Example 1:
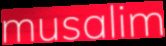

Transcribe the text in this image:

musalim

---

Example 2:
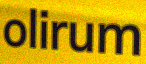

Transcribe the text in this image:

olirum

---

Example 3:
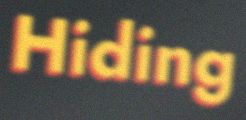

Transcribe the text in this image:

Hiding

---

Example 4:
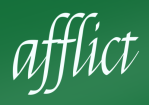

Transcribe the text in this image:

afflict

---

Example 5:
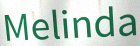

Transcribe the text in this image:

Melinda